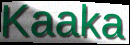
Kaaka